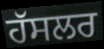
ਹੱਸਲਰ